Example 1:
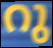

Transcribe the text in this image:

റു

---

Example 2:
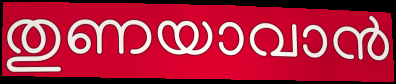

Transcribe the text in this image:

തുണയാവാൻ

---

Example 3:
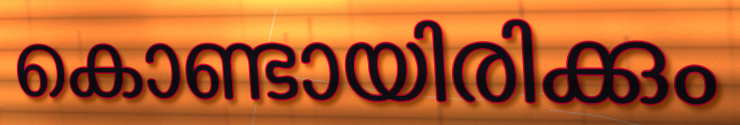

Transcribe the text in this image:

കൊണ്ടായിരിക്കും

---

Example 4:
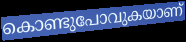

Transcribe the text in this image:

കൊണ്ടുപോവുകയാണ്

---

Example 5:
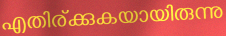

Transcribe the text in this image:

എതിര്ക്കുകയായിരുന്നു